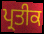
ਪ੍ਰਤੀਕ